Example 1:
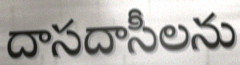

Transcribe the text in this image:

దాసదాసీలను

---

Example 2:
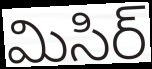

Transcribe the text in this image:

మిసిర్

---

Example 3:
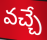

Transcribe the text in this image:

వచ్చే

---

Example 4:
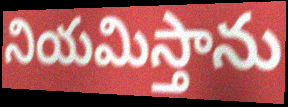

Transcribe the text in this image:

నియమిస్తాను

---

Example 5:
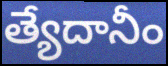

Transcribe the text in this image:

త్యేదానీం